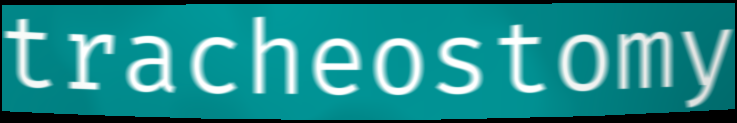
tracheostomy